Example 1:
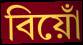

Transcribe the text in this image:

বিয়োঁ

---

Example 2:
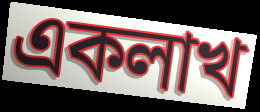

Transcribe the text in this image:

একলাখ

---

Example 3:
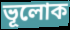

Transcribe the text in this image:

ভূলোক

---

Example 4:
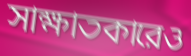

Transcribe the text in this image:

সাক্ষাতকারেও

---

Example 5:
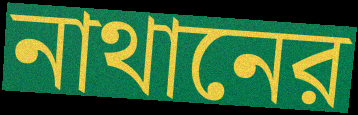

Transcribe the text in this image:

নাথানের